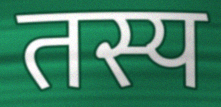
तस्य